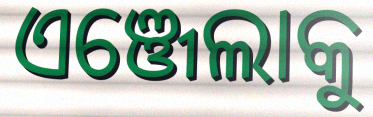
ଏଞ୍ଜେଲାକୁ